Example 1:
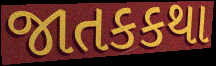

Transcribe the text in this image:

જાતકકથા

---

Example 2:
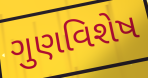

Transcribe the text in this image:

ગુણવિશેષ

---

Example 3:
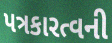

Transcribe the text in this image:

પત્રકારત્વની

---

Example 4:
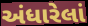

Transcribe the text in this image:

અંધારેલાં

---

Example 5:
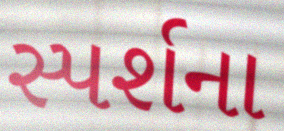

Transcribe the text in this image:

સ્પર્શના